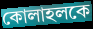
কোলাহলকে